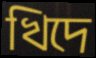
খিদে